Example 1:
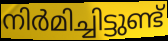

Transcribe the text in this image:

നിർമിച്ചിട്ടുണ്ട്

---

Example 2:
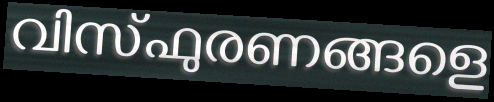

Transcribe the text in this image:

വിസ്ഫുരണങ്ങളെ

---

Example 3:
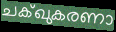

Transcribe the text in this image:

ചക്ഖുകരണാ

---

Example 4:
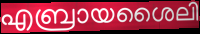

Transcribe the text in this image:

എബ്രായശൈലി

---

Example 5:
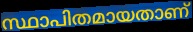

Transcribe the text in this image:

സ്ഥാപിതമായതാണ്